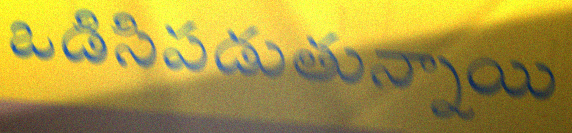
ఒడిసిపడుతున్నాయి